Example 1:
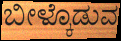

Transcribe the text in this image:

ಬೀಳ್ಕೊಡುವ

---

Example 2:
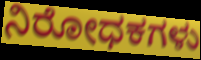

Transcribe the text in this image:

ನಿರೋಧಕಗಳು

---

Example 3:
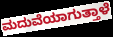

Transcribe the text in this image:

ಮದುವೆಯಾಗುತ್ತಾಳೆ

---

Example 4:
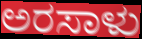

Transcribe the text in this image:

ಅರಸಾಳು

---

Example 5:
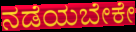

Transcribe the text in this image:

ನಡೆಯಬೇಕೇ